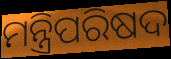
ମନ୍ତ୍ରିପରିଷଦ